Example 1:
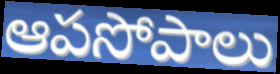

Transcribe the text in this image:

ఆపసోపాలు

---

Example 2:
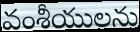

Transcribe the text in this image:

వంశీయులను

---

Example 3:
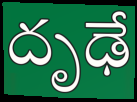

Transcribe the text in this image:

దృఢే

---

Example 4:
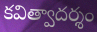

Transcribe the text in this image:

కవిత్వాదర్శం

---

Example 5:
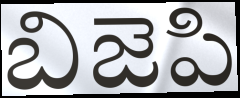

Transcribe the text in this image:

బిజెపి